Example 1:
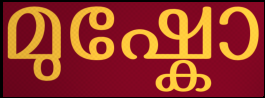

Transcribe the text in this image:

മുഷ്കോ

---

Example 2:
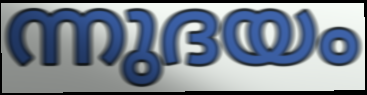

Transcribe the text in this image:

ന്നുദയം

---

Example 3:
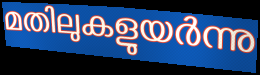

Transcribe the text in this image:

മതിലുകളുയർന്നു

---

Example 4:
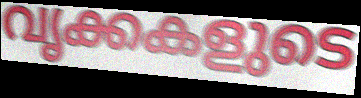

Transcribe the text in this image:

വൃക്കകളുടെ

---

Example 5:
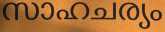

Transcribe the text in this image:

സാഹചര്യം